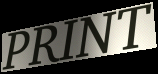
PRINT